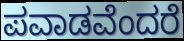
ಪವಾಡವೆಂದರೆ